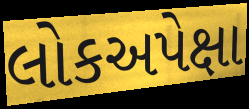
લોકઅપેક્ષા